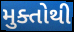
મુક્તોથી